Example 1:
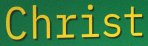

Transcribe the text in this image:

Christ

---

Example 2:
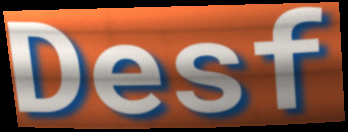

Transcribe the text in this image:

Desf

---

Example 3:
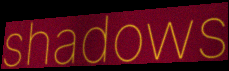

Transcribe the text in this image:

shadows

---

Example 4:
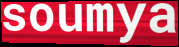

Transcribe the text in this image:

soumya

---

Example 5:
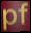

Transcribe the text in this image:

pf